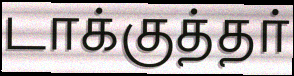
டாக்குத்தர்